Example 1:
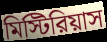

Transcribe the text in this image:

মিস্টিরিয়াস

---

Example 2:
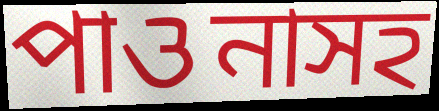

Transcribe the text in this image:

পাওনাসহ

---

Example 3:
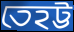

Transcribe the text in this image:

তেহট্ট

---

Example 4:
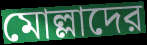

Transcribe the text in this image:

মোল্লাদের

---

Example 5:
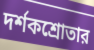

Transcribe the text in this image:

দর্শকশ্রোতার